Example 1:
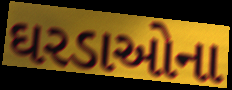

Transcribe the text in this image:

ઘરડાઓના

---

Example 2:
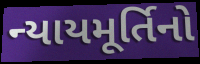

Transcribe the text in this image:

ન્યાયમૂર્તિનો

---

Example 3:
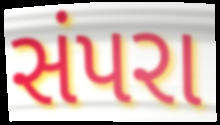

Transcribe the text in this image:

સંપરા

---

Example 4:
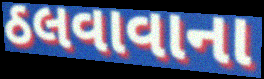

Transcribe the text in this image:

ઠલવાવાના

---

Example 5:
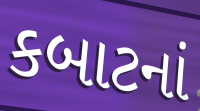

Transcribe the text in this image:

કબાટનાં